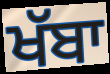
ਖੱਬਾ